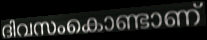
ദിവസംകൊണ്ടാണ്